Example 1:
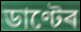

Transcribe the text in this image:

ডাণ্টেৰ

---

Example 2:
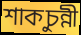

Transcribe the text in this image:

শাকচুন্নী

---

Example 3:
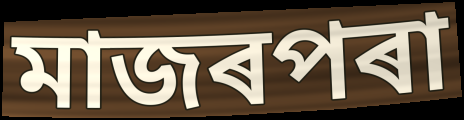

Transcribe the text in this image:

মাজৰপৰা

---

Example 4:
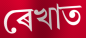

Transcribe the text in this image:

ৰেখাত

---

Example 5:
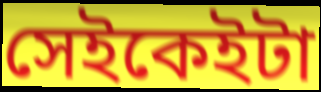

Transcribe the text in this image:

সেইকেইটা